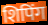
शिपिंग